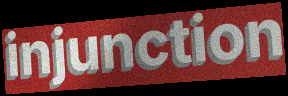
injunction